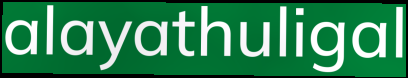
alayathuligal